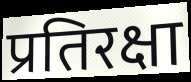
प्रतिरक्षा